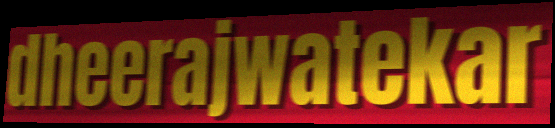
dheerajwatekar